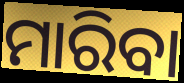
ମାରିବା